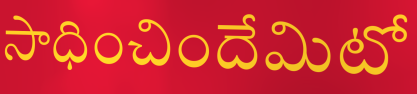
సాధించిందేమిటో